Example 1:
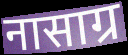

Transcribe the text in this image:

नासाग्र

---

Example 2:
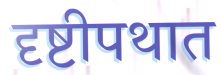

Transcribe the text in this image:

दृष्टीपथात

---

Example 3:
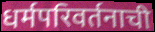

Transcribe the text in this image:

धर्मपरिवर्तनाची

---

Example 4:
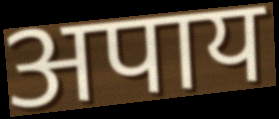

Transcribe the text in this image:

अपाय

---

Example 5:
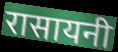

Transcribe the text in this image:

रासायनी